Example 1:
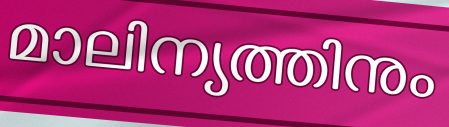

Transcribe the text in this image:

മാലിന്യത്തിനും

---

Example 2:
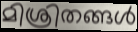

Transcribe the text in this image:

മിശ്രിതങ്ങൾ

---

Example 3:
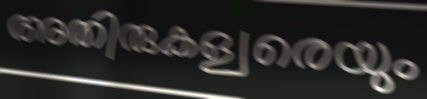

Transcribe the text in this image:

അതിരുകള്വരെയും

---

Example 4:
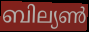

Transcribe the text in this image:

ബില്യൺ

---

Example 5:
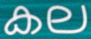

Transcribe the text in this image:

കല